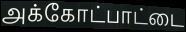
அக்கோட்பாட்டை